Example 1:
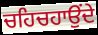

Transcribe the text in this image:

ਚਹਿਚਹਾਉਂਦੇ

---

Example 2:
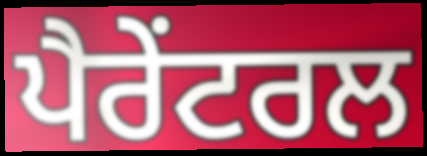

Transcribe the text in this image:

ਪੈਰੇਂਟਰਲ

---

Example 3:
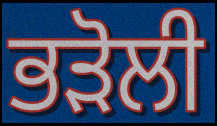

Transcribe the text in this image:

ਭੜੋਲੀ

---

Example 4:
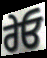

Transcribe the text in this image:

ਰੇਓ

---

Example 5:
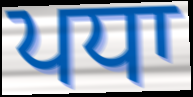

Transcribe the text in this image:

ਪਧਾ